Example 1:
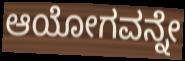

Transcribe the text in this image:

ಆಯೋಗವನ್ನೇ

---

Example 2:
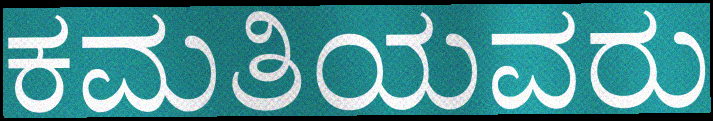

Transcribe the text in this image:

ಕಮತಿಯವರು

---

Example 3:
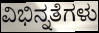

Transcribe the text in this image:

ವಿಭಿನ್ನತೆಗಳು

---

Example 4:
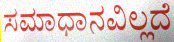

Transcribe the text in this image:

ಸಮಾಧಾನವಿಲ್ಲದೆ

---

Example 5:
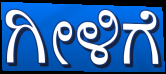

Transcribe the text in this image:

ಗೀಳಿಗೆ